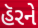
હૅરને